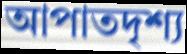
আপাতদৃশ্য